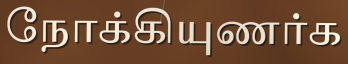
நோக்கியுணர்க